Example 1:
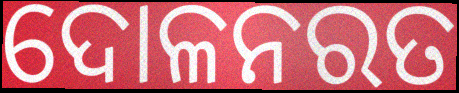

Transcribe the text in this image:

ଦୋଳନରତ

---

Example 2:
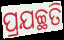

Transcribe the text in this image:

ପ୍ରଯଚ୍ଛତି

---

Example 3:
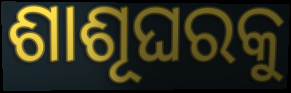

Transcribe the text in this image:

ଶାଶୂଘରକୁ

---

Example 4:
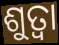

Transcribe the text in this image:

ଶୁତ୍ବା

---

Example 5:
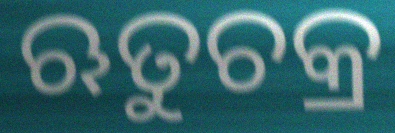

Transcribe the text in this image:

ଋତୁଚକ୍ର